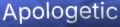
Apologetic